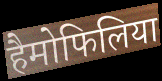
हैमोफिलिया